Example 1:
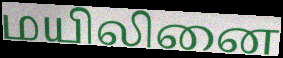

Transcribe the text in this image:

மயிலினை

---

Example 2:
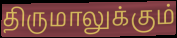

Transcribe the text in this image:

திருமாலுக்கும்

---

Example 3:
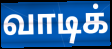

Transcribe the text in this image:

வாடிக்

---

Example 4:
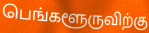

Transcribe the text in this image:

பெங்களூருவிற்கு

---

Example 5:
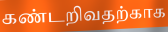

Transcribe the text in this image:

கண்டறிவதற்காக